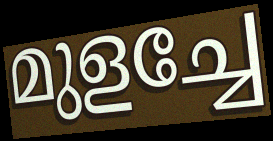
മുളച്ചേ